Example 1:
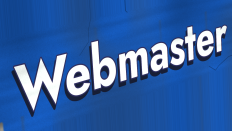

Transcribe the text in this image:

Webmaster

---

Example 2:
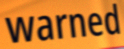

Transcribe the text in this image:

warned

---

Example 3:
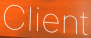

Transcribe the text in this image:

Client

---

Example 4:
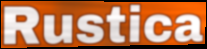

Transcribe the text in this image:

Rustica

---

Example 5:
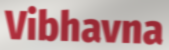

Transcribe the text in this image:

Vibhavna